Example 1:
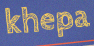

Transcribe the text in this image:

khepa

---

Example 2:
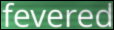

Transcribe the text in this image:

fevered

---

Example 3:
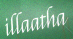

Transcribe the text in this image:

illaatha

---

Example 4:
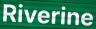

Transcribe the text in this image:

Riverine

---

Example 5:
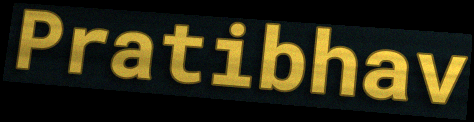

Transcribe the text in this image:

Pratibhav